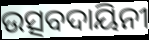
ଉତ୍ସବଦାୟିନୀ